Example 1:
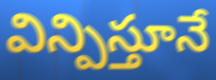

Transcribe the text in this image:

విన్పిస్తూనే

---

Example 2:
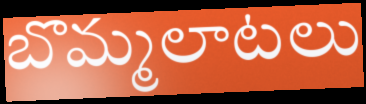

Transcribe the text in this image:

బొమ్మలాటలు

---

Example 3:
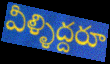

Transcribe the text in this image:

వీళ్ళిద్దరూ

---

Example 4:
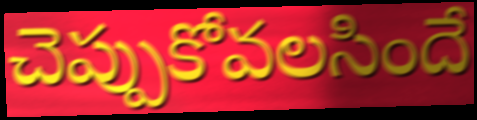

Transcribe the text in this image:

చెప్పుకోవలసిందే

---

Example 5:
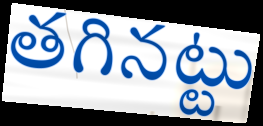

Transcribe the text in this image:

తగినట్టు